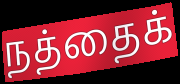
நத்தைக்